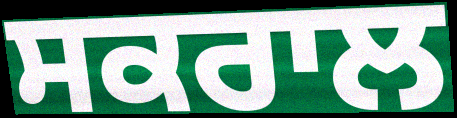
ਸਕਰਾਲ